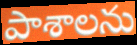
పాశాలను